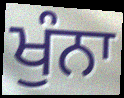
ਖੁੰਨਾ